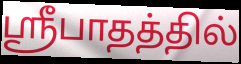
ஸ்ரீபாதத்தில்